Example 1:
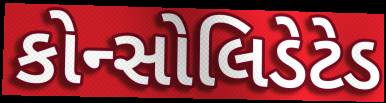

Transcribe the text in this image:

કોન્સોલિડેટેડ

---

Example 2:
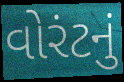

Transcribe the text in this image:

વોરંટનું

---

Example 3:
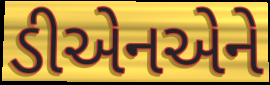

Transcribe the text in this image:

ડીએનએને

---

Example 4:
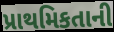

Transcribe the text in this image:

પ્રાથમિકતાની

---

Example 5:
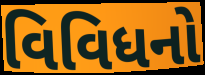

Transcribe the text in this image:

વિવિધનો